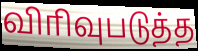
விரிவுபடுத்த